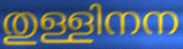
തുള്ളിനന